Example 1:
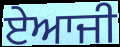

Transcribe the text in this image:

ਏਆਜੀ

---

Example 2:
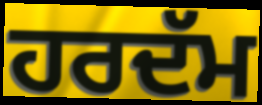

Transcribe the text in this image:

ਹਰਦੱਮ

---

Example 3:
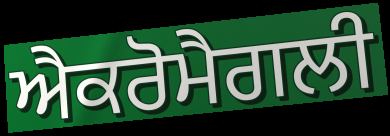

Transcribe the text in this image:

ਐਕਰੋਮੈਗਲੀ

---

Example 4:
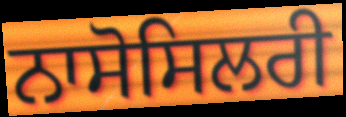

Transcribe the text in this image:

ਨਾਸੋਸਿਲਰੀ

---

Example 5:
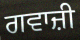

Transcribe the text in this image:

ਗਵਾਜ਼ੀ